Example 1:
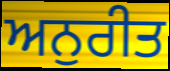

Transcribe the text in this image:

ਅਨੁਰੀਤ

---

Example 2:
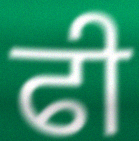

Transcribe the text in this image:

ਫੀ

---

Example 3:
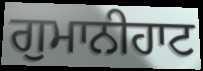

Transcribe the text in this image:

ਗੁਮਾਨੀਹਾਟ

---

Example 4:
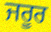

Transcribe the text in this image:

ਜਰੂਰ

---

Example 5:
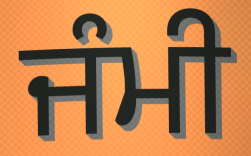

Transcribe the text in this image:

ਜੰਮੀ